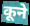
कूने